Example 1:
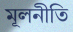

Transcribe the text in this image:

মূলনীতি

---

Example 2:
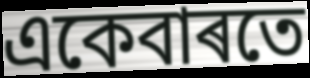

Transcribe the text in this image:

একেবাৰতে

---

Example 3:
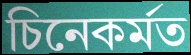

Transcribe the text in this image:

চিনেকৰ্মত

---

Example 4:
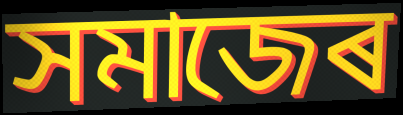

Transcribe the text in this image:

সমাজেৰ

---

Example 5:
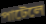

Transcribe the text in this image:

পাটেলে